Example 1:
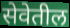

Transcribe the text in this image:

सेवेतील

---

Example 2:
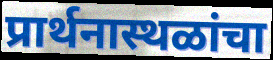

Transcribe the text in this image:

प्रार्थनास्थळांचा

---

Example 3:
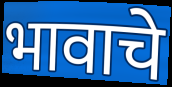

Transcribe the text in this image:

भावाचे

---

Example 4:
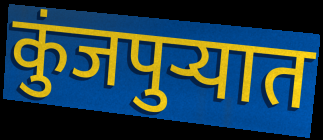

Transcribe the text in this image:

कुंजपुऱ्यात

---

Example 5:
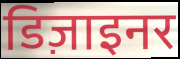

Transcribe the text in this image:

डिज़ाइनर